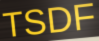
TSDF